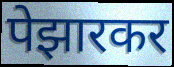
पेझारकर